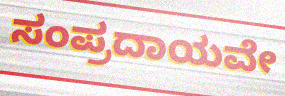
ಸಂಪ್ರದಾಯವೇ